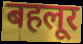
बहलूर